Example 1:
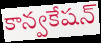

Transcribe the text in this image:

కాన్వకేషన్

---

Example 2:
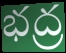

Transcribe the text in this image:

భద్ర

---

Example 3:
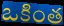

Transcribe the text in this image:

ఒకింత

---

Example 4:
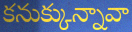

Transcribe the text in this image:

కనుక్కున్నావా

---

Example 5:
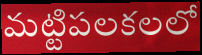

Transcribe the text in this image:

మట్టిపలకలలో